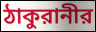
ঠাকুরানীর